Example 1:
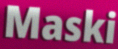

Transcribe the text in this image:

Maski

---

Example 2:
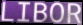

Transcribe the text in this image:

LIBOR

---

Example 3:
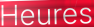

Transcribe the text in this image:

Heures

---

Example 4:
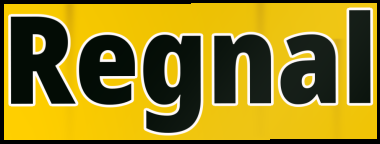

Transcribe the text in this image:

Regnal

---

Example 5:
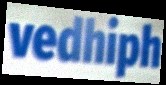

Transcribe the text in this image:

vedhiph